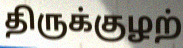
திருக்குழற்